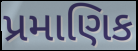
પ્રમાણિક